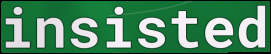
insisted